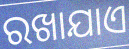
ରଖାଯାଏ